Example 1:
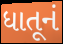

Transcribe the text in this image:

ધાતૂનં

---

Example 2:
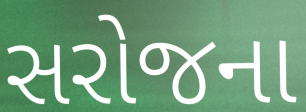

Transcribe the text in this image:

સરોજના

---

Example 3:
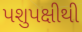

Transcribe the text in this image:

પશુપક્ષીથી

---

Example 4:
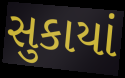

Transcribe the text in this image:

સુકાયાં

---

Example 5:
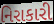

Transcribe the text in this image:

નિરાકારી